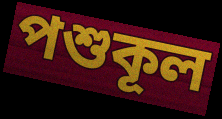
পশুকূল